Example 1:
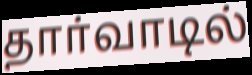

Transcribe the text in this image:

தார்வாடில்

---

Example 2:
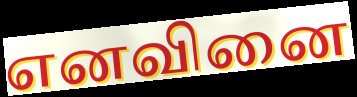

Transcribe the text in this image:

எனவினை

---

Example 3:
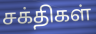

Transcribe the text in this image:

சக்திகள்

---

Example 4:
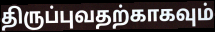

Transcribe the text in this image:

திருப்புவதற்காகவும்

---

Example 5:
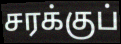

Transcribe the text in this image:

சரக்குப்